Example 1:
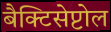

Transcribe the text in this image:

बैक्टिसेप्टोल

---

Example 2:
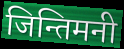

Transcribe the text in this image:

जिन्तिमनी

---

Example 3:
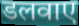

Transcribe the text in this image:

डलवाए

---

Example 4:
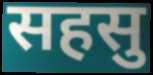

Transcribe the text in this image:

सहसु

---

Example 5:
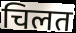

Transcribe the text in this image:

चिलत